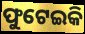
ଫୁଟେଇକି